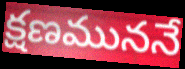
క్షణముననే